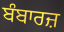
ਬੰਬਾਰਜ਼